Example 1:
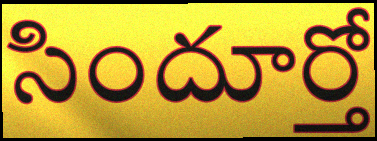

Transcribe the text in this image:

సిందూర్తో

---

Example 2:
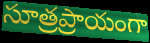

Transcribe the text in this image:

సూత్రప్రాయంగా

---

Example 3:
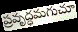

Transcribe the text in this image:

ప్రవృద్ధమగుచూ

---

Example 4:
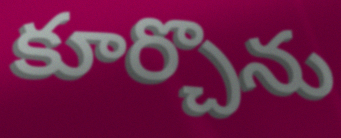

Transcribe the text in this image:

కూర్చొను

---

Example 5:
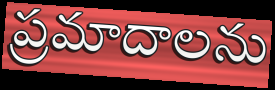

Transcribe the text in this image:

ప్రమాదాలను